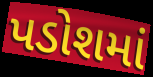
પડોશમાં